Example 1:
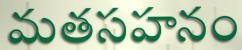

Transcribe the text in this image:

మతసహనం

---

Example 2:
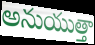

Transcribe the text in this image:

అనుయుత్తా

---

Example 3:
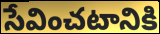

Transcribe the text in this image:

సేవించటానికి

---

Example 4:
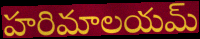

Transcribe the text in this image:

హరిమాలయమ్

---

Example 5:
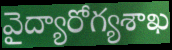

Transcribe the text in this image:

వైద్యారోగ్యశాఖ